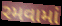
રમવામાં